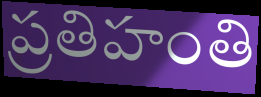
ప్రతిహంతి